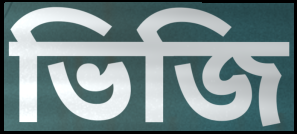
ভিজি